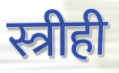
स्त्रीही